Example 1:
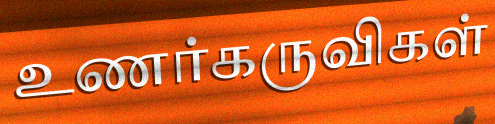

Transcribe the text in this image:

உணர்கருவிகள்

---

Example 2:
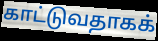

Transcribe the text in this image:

காட்டுவதாகக்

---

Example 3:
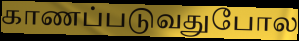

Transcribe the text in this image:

காணப்படுவதுபோல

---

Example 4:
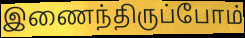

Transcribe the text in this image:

இணைந்திருப்போம்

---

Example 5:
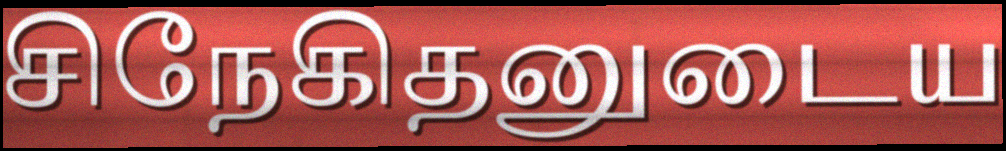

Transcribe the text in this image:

சிநேகிதனுடைய